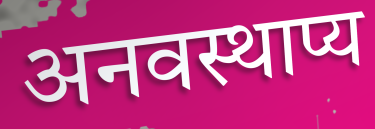
अनवस्थाप्य